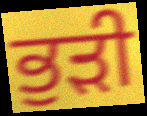
ਭੁੜੀ